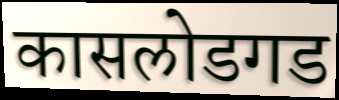
कासलोडगड